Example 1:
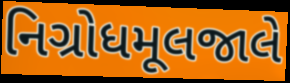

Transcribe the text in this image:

નિગ્રોધમૂલજાલે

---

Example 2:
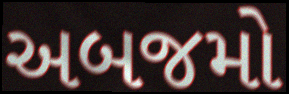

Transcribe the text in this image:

અબજમો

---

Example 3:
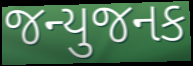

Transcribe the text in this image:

જન્યુજનક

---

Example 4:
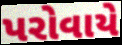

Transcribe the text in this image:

પરોવાયે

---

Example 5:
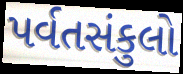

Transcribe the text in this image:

પર્વતસંકુલો